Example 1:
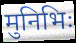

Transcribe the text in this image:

मुनिभिः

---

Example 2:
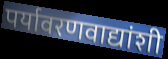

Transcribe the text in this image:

पर्यावरणवाद्यांशी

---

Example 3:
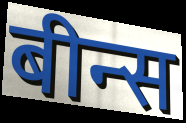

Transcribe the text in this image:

बीन्स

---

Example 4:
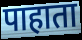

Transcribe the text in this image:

पाहाता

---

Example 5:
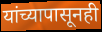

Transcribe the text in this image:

यांच्यापासूनही